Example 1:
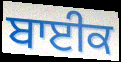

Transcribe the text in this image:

ਬਾਈਕ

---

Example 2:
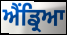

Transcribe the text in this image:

ਐਂਡ੍ਰਿਆ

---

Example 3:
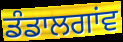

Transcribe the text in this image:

ਡੰਡਾਲਗਾਂਵ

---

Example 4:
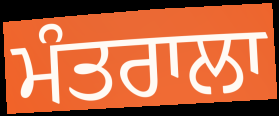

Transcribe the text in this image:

ਮੰਤਰਾਲਾ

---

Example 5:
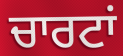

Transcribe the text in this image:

ਚਾਰਟਾਂ